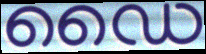
ഡൈ